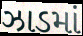
ઝાડમાં